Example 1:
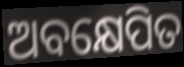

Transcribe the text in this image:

ଅବକ୍ଷେପିତ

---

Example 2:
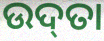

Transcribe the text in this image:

ଉଦ୍‌ତା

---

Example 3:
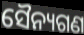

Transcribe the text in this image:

ସୈନ୍ୟଗଣ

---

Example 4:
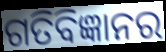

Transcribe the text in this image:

ଗତିବିଜ୍ଞାନର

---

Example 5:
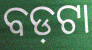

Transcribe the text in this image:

ବଡ଼ଟା